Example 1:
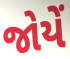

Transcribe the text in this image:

જોયેં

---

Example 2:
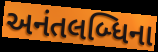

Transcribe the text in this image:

અનંતલબ્ધિના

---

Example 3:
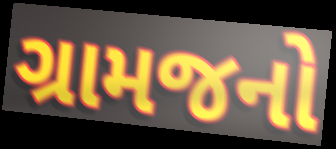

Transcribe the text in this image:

ગ્રામજનો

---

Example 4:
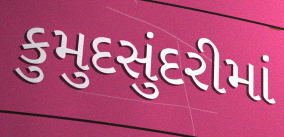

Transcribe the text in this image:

કુમુદસુંદરીમાં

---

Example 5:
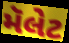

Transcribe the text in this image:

મૅલેટ